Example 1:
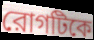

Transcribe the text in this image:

রোগটিকে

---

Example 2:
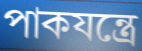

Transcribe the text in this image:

পাকযন্ত্রে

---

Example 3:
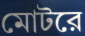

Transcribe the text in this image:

মোটরে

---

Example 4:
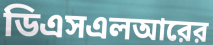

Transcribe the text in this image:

ডিএসএলআরের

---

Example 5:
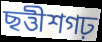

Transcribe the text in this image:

ছত্তীশগঢ়